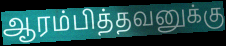
ஆரம்பித்தவனுக்கு